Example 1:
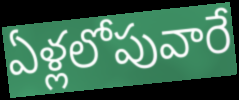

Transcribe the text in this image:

ఏళ్లలోపువారే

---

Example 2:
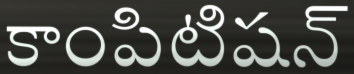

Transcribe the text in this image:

కాంపిటిషన్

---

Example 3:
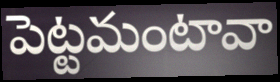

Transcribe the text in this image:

పెట్టమంటావా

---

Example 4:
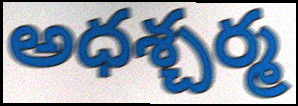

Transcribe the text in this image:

అధశ్చర్మ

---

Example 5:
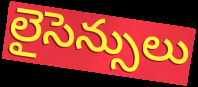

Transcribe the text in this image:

లైసెన్సులు